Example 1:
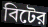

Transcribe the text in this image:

বিটের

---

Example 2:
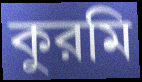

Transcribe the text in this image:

কুরমি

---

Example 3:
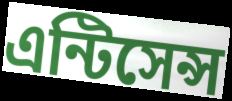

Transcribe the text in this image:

এন্টিসেন্স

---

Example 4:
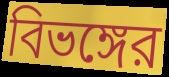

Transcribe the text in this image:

বিভঙ্গের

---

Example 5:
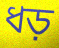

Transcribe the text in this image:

ধড়